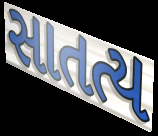
સાતત્ય